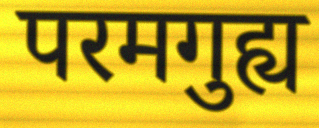
परमगुह्य